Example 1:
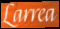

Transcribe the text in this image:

Larrea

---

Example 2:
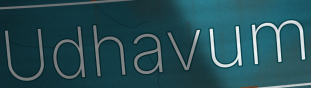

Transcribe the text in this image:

Udhavum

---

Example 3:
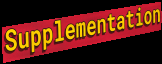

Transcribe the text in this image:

Supplementation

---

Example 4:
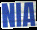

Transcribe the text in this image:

NIA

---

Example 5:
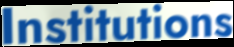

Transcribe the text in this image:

Institutions